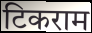
टिकराम